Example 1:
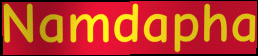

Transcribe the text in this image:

Namdapha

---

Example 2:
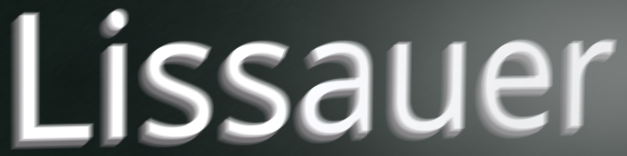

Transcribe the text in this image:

Lissauer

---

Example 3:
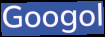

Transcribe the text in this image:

Googol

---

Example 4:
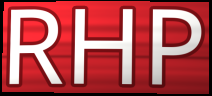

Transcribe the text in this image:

RHP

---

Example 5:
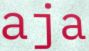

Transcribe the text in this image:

aja